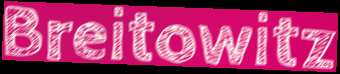
Breitowitz